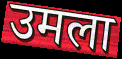
उमला